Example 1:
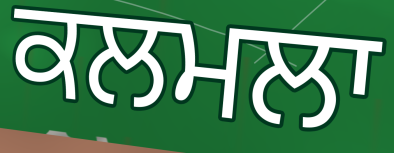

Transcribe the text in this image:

ਕਲਮਲਾ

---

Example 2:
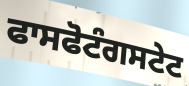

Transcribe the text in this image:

ਫਾਸਫੋਟੰਗਸਟੇਟ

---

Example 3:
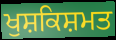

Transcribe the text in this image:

ਖੁਸ਼ਕਿਸ਼ਮਤ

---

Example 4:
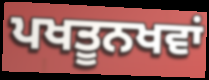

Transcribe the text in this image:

ਪਖਤੂਨਖਵਾਂ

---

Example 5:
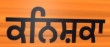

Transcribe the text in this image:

ਕਨਿਸ਼ਕਾ